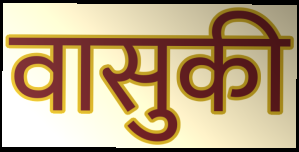
वासुकी